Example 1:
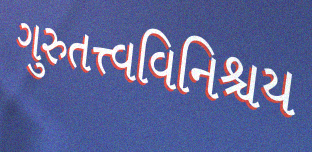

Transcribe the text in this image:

ગુરુતત્ત્વવિનિશ્ચય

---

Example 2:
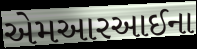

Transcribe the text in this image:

એમઆરઆઈના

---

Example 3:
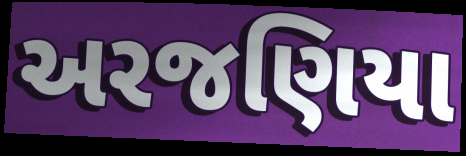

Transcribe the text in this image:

અરજણિયા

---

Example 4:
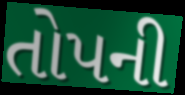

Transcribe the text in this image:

તોપની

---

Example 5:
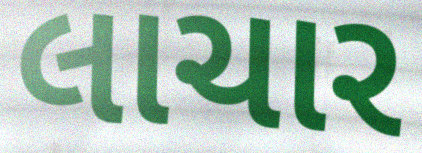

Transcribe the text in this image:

લાચાર